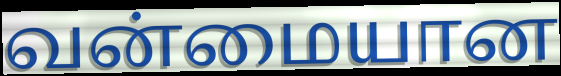
வன்மையான